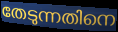
തേടുന്നതിനെ